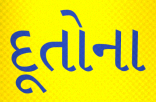
દૂતોના